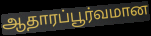
ஆதாரப்பூர்வமான